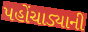
પહોંચાડ્યાની